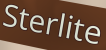
Sterlite